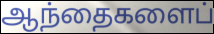
ஆந்தைகளைப்